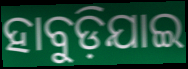
ହାବୁଡ଼ିଯାଇ